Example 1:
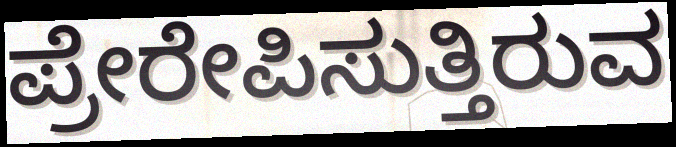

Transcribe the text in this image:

ಪ್ರೇರೇಪಿಸುತ್ತಿರುವ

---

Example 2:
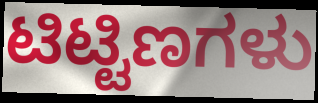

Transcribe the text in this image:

ಟಿಟ್ಟಿಣಗಳು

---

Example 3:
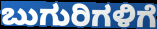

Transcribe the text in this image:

ಬುಗುರಿಗಳಿಗೆ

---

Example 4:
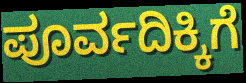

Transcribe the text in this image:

ಪೂರ್ವದಿಕ್ಕಿಗೆ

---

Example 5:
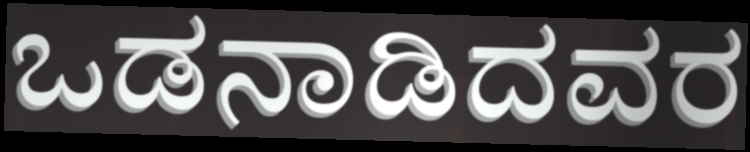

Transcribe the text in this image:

ಒಡನಾಡಿದವರ